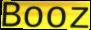
Booz